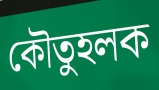
কৌতুহলক